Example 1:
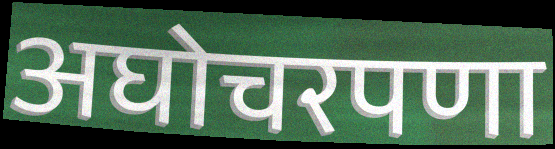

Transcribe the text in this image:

अघोचरपणा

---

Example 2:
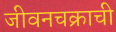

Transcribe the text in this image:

जीवनचक्राची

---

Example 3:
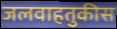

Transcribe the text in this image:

जलवाहतुकीस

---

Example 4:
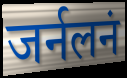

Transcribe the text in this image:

जर्नलनं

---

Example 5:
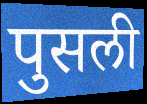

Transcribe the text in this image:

पुसली